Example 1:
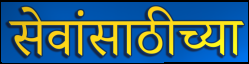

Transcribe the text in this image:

सेवांसाठीच्या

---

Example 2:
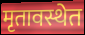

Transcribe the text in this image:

मृतावस्थेत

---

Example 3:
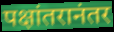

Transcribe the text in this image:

पक्षांतरानंतर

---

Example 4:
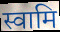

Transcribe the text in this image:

स्वामि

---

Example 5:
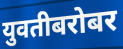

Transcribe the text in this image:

युवतीबरोबर